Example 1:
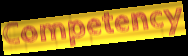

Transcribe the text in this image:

Competency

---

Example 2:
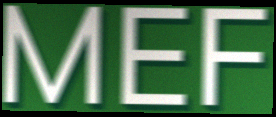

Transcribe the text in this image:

MEF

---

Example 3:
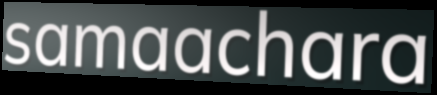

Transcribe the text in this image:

samaachara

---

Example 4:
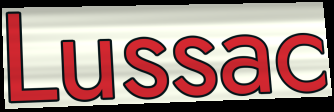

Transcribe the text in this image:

Lussac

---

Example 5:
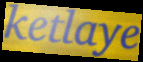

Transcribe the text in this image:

ketlaye